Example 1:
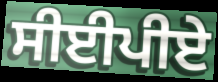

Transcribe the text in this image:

ਸੀਈਪੀਏ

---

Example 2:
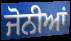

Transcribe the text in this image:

ਜੋਨੀਆਂ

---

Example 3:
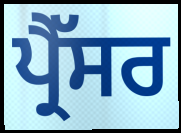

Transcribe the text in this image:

ਪ੍ਰੈੱਸਰ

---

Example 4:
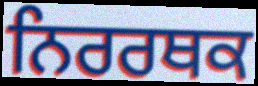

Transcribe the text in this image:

ਨਿਰਰਥਕ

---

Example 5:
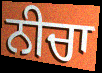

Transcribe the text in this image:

ਨੀਚਾ